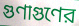
গুণাগুণের